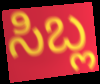
ಸಿಬ್ಲ